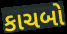
કાચબો